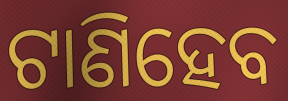
ଟାଣିହେବ